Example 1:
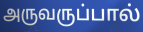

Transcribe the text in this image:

அருவருப்பால்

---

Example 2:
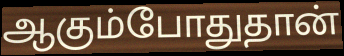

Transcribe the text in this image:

ஆகும்போதுதான்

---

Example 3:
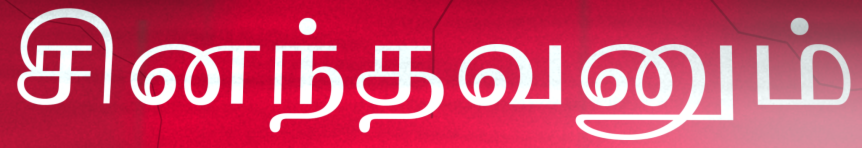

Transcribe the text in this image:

சினந்தவனும்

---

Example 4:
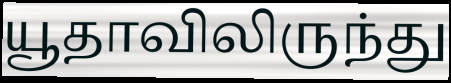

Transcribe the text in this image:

யூதாவிலிருந்து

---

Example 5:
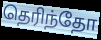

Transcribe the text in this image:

தெரிந்தோ